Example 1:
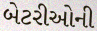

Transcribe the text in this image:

બેટરીઓની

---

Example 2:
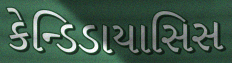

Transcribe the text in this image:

કેન્ડિડાયાસિસ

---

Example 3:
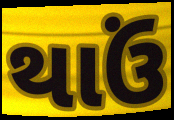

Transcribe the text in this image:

થાઉં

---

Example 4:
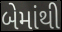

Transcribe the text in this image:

બેમાંથી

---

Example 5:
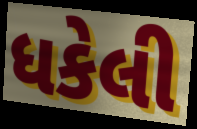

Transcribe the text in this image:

ધકેલી